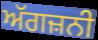
ਅੱਗਜ਼ਨੀ